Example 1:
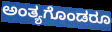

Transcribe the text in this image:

ಅಂತ್ಯಗೊಂಡರೂ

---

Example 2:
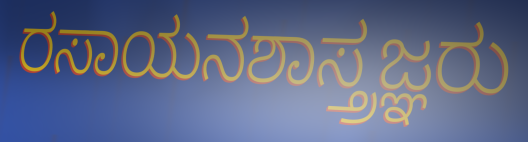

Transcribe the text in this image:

ರಸಾಯನಶಾಸ್ತ್ರಜ್ಞರು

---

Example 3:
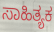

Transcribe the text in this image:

ಸಾಹಿತ್ಯಕ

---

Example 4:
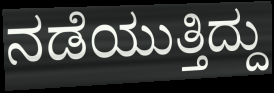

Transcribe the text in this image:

ನಡೆಯುತ್ತಿದ್ದು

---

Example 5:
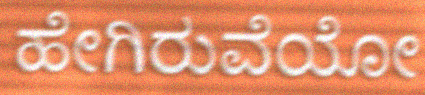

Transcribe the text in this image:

ಹೇಗಿರುವೆಯೋ